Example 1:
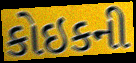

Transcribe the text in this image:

કોઇકની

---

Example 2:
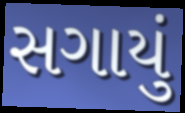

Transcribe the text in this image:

સગાયું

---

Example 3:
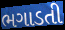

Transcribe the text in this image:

ભગાડતી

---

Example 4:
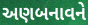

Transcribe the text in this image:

અણબનાવને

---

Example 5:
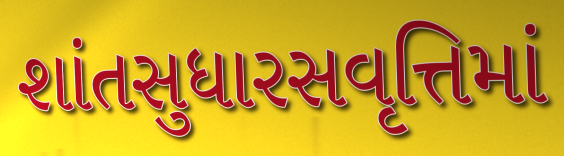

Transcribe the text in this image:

શાંતસુધારસવૃત્તિમાં